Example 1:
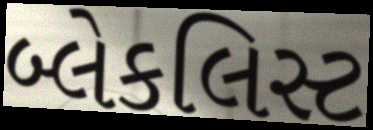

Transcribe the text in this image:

બ્લેકલિસ્ટ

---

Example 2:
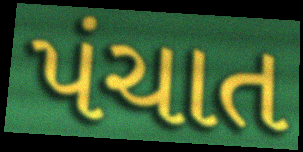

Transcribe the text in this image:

પંચાત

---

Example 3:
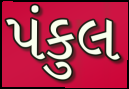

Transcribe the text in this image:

પંકુલ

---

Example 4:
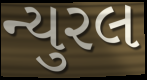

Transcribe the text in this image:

ન્યુરલ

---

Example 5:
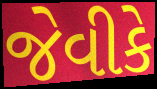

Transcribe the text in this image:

જેવીકે